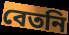
বেতনি